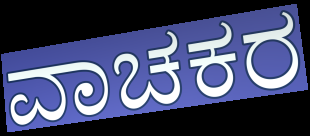
ವಾಚಕರ